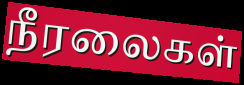
நீரலைகள்